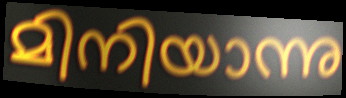
മിനിയാന്നു